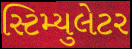
સ્ટિમ્યુલેટર